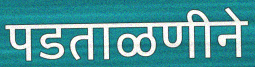
पडताळणीने